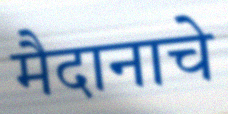
मैदानाचे